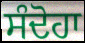
ਸੰਦੋਹਾ